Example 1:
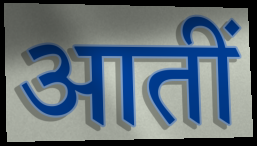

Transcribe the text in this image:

आतीं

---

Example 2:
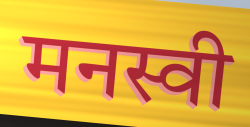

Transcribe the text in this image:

मनस्वी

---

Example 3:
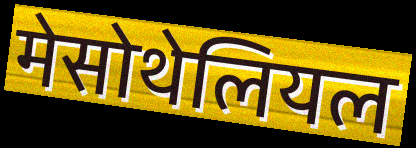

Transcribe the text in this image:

मेसोथेलियल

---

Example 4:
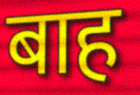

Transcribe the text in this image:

बाह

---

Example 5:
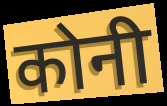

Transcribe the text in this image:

कोनी